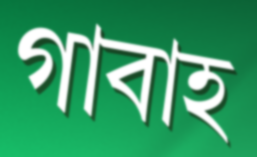
গাবাহ